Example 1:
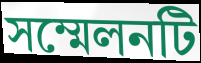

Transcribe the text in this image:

সম্মেলনটি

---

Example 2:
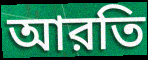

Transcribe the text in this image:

আরতি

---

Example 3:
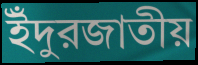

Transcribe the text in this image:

ইঁদুরজাতীয়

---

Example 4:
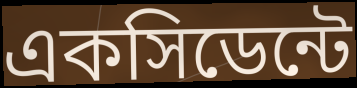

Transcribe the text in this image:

একসিডেন্টে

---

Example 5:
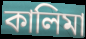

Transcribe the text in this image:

কালিমা